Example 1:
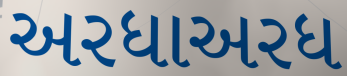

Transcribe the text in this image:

અરધાઅરધ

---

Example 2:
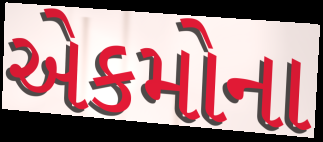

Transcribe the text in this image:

એકમોના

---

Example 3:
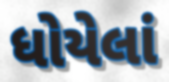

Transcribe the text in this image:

ધોયેલાં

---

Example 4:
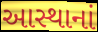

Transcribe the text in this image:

આસ્થાનાં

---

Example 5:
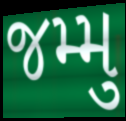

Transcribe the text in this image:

જમ્મુ